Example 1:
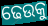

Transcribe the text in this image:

ଢେଉକୁ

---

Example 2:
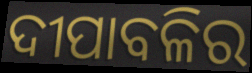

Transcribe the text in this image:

ଦୀପାବଳିର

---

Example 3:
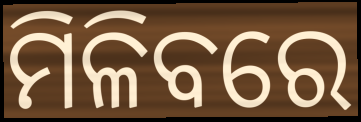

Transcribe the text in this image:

ମିଳିବରେ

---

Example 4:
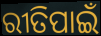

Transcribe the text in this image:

ରୀତିପାଇଁ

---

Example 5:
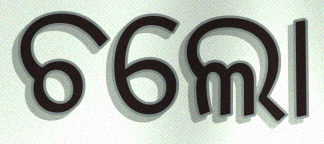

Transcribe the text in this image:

ଚଲୋ